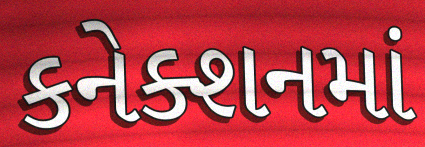
કનેક્શનમાં